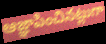
ఆజ్ఞాపించినట్లుగా